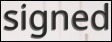
signed